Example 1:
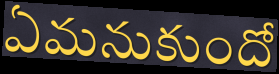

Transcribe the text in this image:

ఏమనుకుందో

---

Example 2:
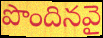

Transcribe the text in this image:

పొందినవై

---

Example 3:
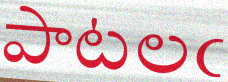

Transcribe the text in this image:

పాటలఁ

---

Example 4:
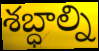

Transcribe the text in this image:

శబ్ధాల్ని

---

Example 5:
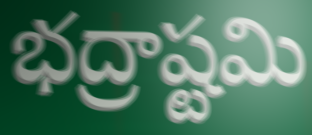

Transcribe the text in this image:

భద్రాష్టమి